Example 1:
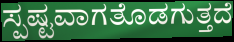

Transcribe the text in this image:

ಸ್ಪಷ್ಟವಾಗತೊಡಗುತ್ತದೆ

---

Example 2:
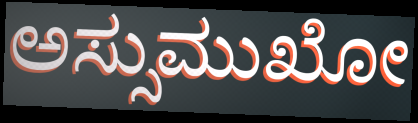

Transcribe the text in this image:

ಅಸ್ಸುಮುಖೋ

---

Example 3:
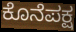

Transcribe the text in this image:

ಕೊನೆಪಕ್ಷ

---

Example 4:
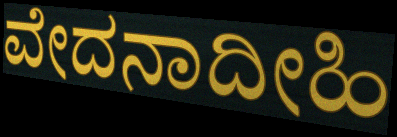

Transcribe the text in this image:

ವೇದನಾದೀಹಿ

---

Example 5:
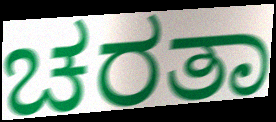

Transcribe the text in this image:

ಚರತಾ